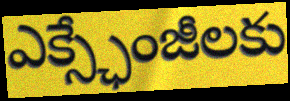
ఎక్స్ఛేంజీలకు